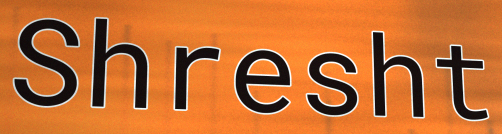
Shresht